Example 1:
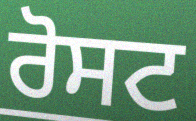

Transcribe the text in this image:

ਰੋਸਟ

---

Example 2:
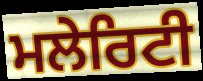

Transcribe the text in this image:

ਮਲੇਰਿਟੀ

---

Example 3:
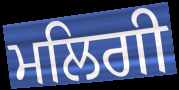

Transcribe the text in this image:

ਮਲਿਗੀ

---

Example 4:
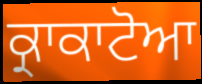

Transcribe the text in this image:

ਕ੍ਰਾਕਾਟੋਆ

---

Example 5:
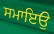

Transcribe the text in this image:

ਸਮਾਇਉ